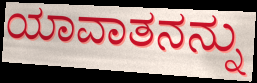
ಯಾವಾತನನ್ನು